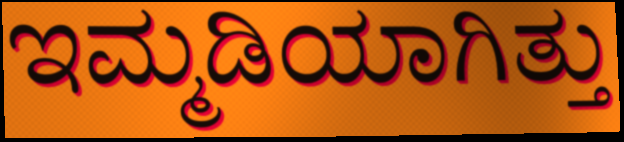
ಇಮ್ಮಡಿಯಾಗಿತ್ತು